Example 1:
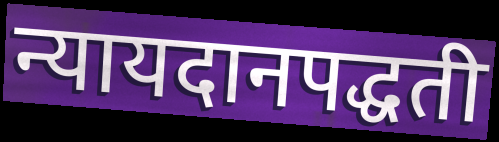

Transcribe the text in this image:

न्यायदानपद्धती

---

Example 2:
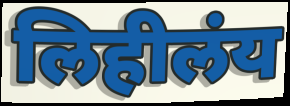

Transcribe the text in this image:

लिहीलंय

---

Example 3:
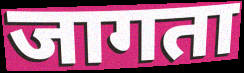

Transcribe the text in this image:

जागता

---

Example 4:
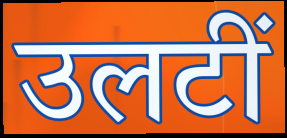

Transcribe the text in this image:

उलटीं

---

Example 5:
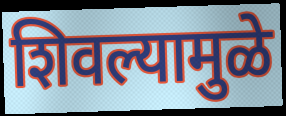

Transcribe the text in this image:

शिवल्यामुळे